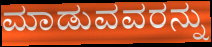
ಮಾಡುವವರನ್ನು